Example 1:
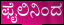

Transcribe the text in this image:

ಫೈಲಿನಿಂದ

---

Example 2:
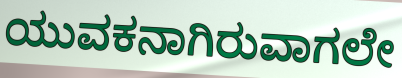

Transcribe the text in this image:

ಯುವಕನಾಗಿರುವಾಗಲೇ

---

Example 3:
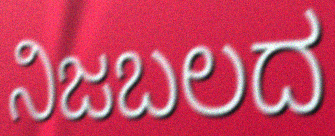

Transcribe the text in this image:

ನಿಜಬಲದ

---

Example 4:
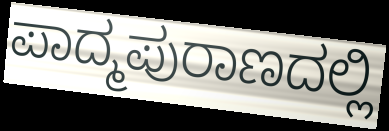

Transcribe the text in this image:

ಪಾದ್ಮಪುರಾಣದಲ್ಲಿ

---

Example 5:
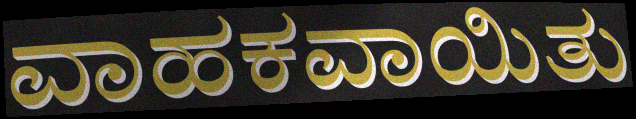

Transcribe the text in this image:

ವಾಹಕವಾಯಿತು